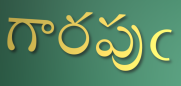
గారపుఁ